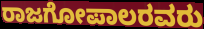
ರಾಜಗೋಪಾಲರವರು